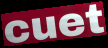
cuet